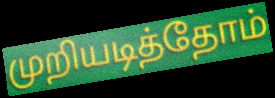
முறியடித்தோம்